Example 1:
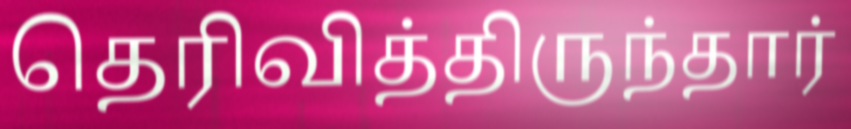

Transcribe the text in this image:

தெரிவித்திருந்தார்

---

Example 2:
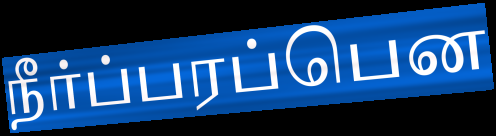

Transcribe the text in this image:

நீர்ப்பரப்பென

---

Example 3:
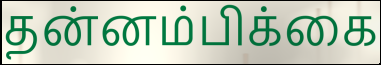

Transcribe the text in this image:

தன்னம்பிக்கை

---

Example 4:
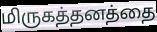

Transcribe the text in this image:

மிருகத்தனத்தை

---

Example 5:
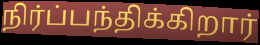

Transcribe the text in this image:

நிர்ப்பந்திக்கிறார்